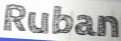
Ruban